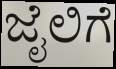
ಜೈಲಿಗೆ